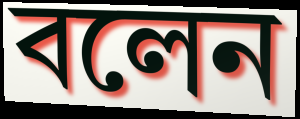
বলেন